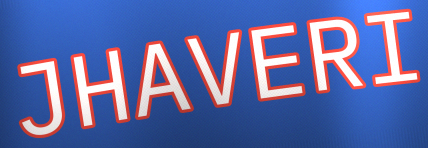
JHAVERI